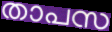
താപസ